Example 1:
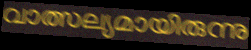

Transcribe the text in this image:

വാത്സല്യമായിരുന്നു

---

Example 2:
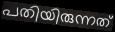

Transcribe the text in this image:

പതിയിരുന്നത്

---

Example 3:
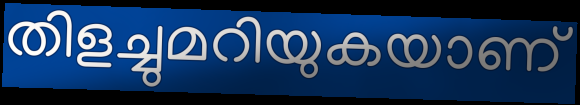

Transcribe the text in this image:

തിളച്ചുമറിയുകയാണ്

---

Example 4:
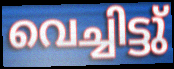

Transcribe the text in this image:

വെച്ചിട്ടു്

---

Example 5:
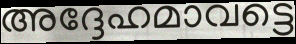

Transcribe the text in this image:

അദ്ദേഹമാവട്ടെ